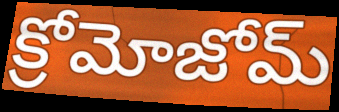
క్రోమోజోమ్